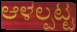
ಆಳಲ್ಪಟ್ಟ